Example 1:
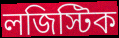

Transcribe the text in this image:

লজিস্টিক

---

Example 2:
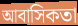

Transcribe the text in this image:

আবাসিকতা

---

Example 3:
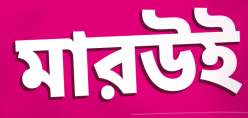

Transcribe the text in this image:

মারউই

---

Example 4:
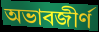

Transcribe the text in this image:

অভাবজীর্ণ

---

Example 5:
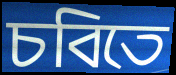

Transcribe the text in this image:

চবিতে